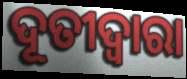
ଦୂତୀଦ୍ୱାରା